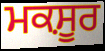
ਮਕ਼ਸੂਰ